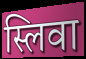
स्लिवा